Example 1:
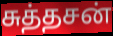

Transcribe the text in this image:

சுத்தசன்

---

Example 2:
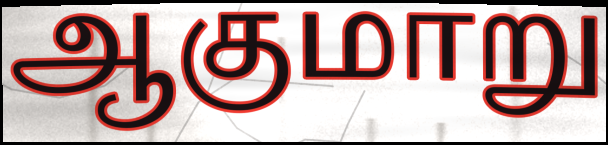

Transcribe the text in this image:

ஆகுமாறு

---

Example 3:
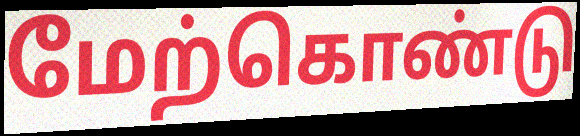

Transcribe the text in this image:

மேற்கொண்டு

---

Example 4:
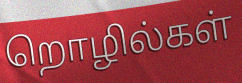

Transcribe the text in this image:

றொழில்கள்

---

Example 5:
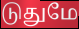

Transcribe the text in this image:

டுதுமே